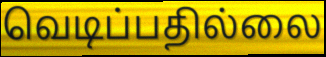
வெடிப்பதில்லை